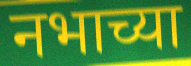
नभाच्या